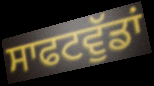
ਸਾਫਟਵੁੱਡਾਂ